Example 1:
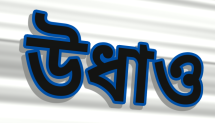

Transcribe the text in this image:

উধাও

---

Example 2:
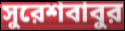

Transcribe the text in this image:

সুরেশবাবুর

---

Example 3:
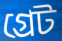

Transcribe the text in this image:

গ্রেট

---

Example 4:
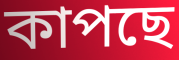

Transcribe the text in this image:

কাপছে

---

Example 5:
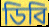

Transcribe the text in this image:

ডিবি